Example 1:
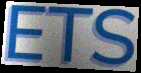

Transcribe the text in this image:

ETS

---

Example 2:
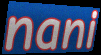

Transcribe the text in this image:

nani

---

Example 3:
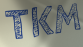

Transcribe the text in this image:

TKM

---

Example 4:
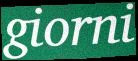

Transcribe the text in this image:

giorni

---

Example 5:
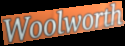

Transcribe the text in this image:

Woolworth